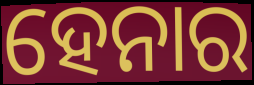
ହେନାର